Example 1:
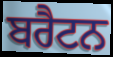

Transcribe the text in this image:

ਬਰੈਟਨ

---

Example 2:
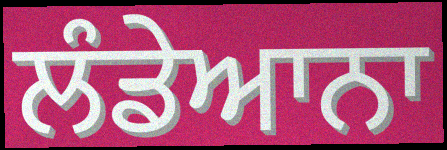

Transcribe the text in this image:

ਲੰਡੇਆਨਾ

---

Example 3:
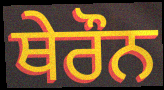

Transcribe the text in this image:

ਥੇਰੌਨ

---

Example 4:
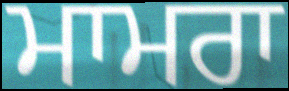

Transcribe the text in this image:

ਮਾਮਰਾ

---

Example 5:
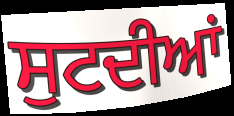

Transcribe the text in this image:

ਸੁਟਦੀਆਂ